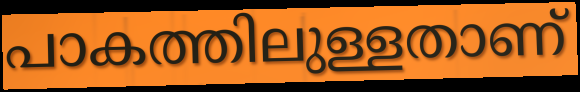
പാകത്തിലുള്ളതാണ്